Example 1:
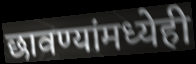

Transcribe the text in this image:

छावण्यांमध्येही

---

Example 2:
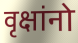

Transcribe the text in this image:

वृक्षांनो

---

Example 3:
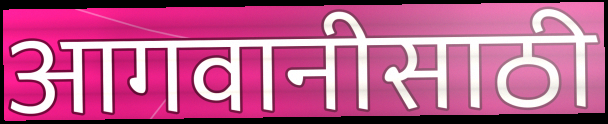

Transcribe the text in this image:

आगवानीसाठी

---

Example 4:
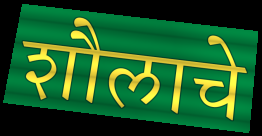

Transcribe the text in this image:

शौलाचे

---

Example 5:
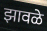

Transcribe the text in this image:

झावळे